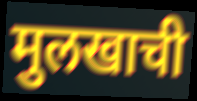
मुलखाची